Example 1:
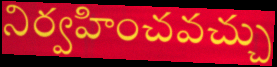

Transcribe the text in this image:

నిర్వహించవచ్చు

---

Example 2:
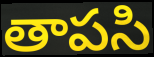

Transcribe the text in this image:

తాపసి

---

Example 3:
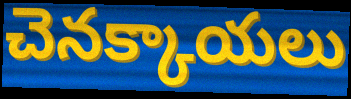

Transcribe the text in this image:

చెనక్కాయలు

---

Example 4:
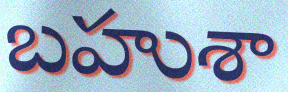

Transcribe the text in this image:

బహుశా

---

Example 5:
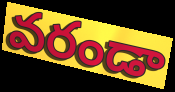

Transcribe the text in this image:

వరండా